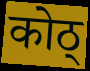
कोठ्